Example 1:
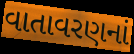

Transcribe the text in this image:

વાતાવરણનાં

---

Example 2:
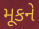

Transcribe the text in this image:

મૂકને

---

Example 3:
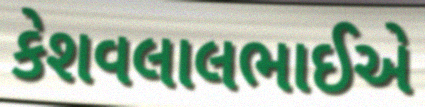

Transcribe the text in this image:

કેશવલાલભાઈએ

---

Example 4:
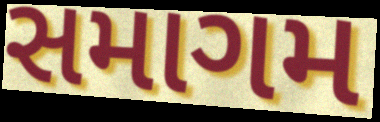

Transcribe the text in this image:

સમાગમ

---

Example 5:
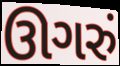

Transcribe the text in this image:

ઊગરું